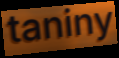
taniny